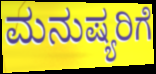
ಮನುಷ್ಯರಿಗೆ